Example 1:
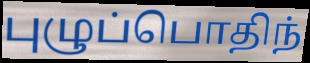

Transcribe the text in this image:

புழுப்பொதிந்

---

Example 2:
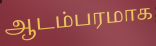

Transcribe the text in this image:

ஆடம்பரமாக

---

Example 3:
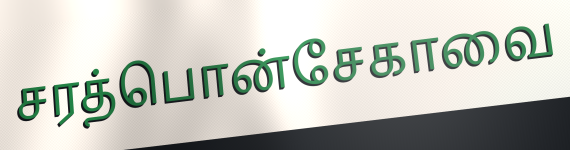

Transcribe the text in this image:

சரத்பொன்சேகாவை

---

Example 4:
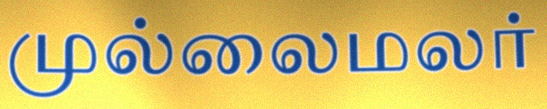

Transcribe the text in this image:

முல்லைமலர்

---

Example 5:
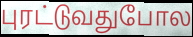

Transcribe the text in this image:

புரட்டுவதுபோல